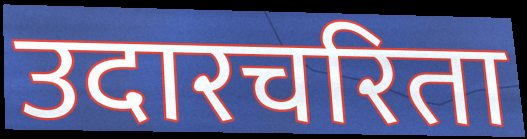
उदारचरिता